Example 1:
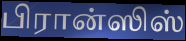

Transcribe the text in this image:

பிரான்ஸிஸ்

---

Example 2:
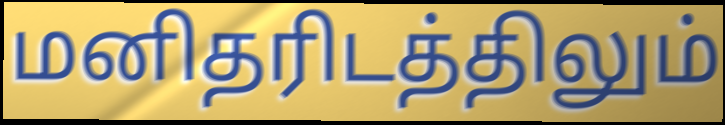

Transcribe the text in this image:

மனிதரிடத்திலும்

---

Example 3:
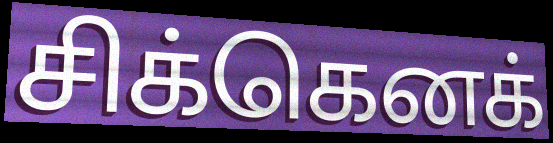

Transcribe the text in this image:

சிக்கெனக்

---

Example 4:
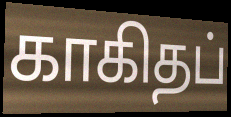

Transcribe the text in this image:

காகிதப்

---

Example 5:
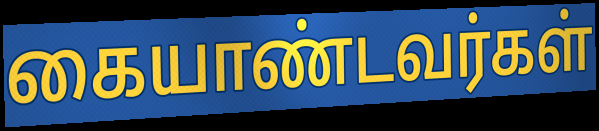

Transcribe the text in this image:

கையாண்டவர்கள்